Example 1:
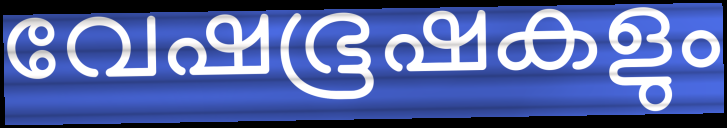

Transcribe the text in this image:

വേഷഭൂഷകളും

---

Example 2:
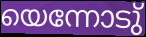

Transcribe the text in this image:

യെന്നോടു്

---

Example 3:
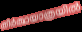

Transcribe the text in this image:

തീർത്ഥയാത്രയിൽ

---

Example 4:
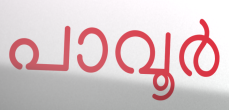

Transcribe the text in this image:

പാവൂർ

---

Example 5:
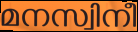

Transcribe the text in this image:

മനസ്വിനീ